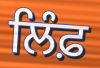
ਲਿੰਫ਼